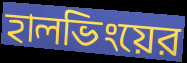
হালভিংয়ের